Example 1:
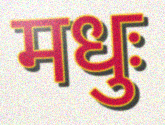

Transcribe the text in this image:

मधुः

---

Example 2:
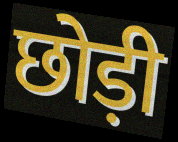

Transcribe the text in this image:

छोड़ी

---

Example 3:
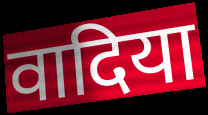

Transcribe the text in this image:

वादिया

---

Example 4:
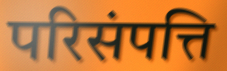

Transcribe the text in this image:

परिसंपत्ति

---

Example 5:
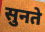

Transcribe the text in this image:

सुनते